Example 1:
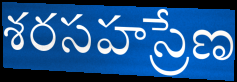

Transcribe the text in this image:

శరసహస్రేణ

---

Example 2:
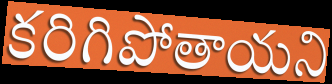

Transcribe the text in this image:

కరిగిపోతాయని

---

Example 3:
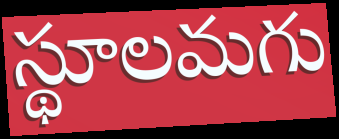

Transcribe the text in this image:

స్థూలమగు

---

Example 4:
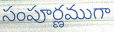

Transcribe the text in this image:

సంపూర్ణముగా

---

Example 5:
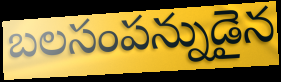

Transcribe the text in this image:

బలసంపన్నుడైన